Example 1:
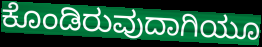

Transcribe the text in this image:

ಕೊಂಡಿರುವುದಾಗಿಯೂ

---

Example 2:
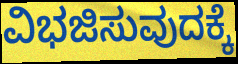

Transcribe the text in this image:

ವಿಭಜಿಸುವುದಕ್ಕೆ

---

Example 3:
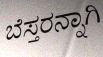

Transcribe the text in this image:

ಬೆಸ್ತರನ್ನಾಗಿ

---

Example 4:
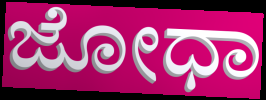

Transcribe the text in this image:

ಜೋಧಾ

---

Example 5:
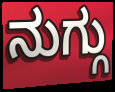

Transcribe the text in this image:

ನುಗ್ಗು